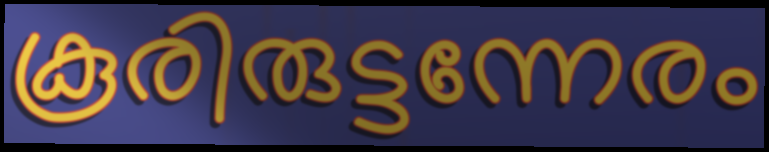
കൂരിരുട്ടന്നേരം